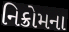
નિક્રોમના